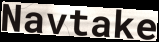
Navtake